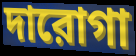
দারোগা